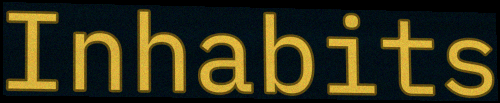
Inhabits